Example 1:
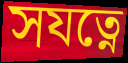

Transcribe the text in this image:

সযত্নে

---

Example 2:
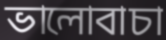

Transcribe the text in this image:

ভালোবাচা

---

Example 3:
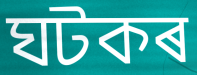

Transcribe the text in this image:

ঘটকৰ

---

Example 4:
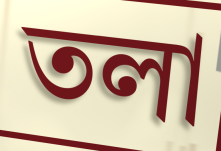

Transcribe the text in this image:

তলা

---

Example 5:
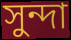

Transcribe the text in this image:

সুন্দা